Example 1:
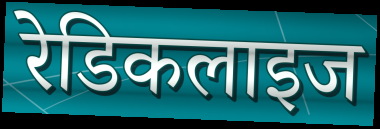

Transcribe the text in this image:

रेडिकलाइज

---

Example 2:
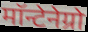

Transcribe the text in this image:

मॉन्टेनेग्रो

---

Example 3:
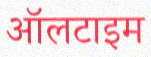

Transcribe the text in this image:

ऑलटाइम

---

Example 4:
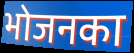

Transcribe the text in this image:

भोजनका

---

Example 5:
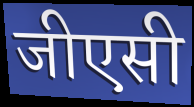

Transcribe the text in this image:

जीएसी